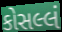
કોસલ્લં